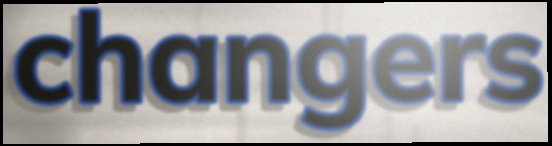
changers